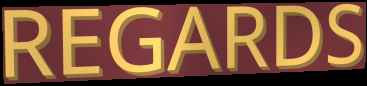
REGARDS